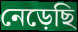
নেড়েছি